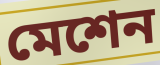
মেশেন